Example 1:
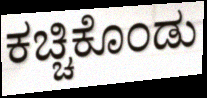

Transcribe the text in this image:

ಕಚ್ಚಿಕೊಂಡು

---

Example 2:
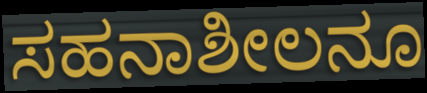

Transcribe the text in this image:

ಸಹನಾಶೀಲನೂ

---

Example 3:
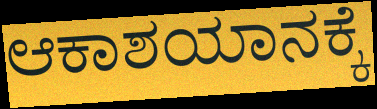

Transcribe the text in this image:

ಆಕಾಶಯಾನಕ್ಕೆ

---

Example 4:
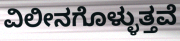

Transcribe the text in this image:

ವಿಲೀನಗೊಳ್ಳುತ್ತವೆ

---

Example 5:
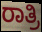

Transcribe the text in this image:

ರಾತ್ರಿ